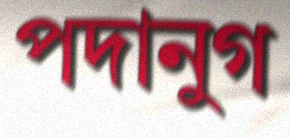
পদানুগ